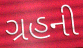
ગ્રહની